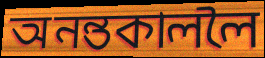
অনন্তকাললৈ